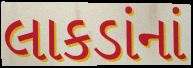
લાકડાંનાં